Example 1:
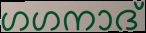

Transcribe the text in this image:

ഗഗനാദ്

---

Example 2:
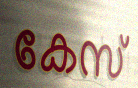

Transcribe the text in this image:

കേസ്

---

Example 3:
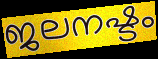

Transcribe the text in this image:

ജലനഷ്ടം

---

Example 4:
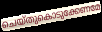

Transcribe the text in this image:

ചെയ്തുകൊടുക്കേണമേ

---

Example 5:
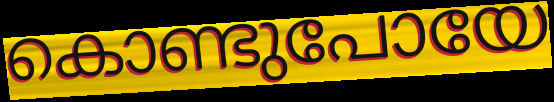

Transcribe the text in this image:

കൊണ്ടുപോയേ